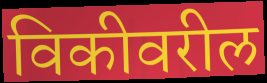
विकीवरील